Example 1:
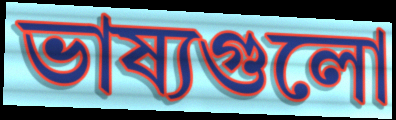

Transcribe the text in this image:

ভাষ্যগুলো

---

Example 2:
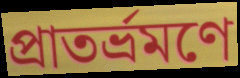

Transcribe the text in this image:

প্রাতর্ভ্রমণে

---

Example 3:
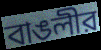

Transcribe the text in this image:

বাঙলীর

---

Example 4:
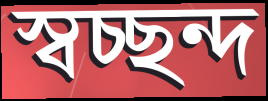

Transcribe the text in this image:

স্বচ্ছন্দ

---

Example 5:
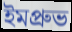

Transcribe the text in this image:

ইমপ্রুভ